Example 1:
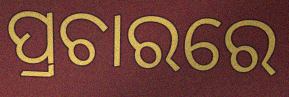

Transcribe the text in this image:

ପ୍ରଚାରରେ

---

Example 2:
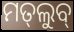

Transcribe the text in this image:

ମତ୍‌ଲୁବ୍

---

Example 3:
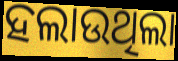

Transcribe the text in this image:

ହଲାଉଥିଲା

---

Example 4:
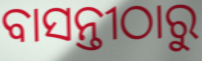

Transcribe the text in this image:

ବାସନ୍ତୀଠାରୁ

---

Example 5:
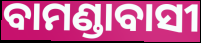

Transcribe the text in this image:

ବାମଣ୍ଡାବାସୀ